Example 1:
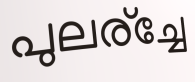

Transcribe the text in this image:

പുലര്ച്ചേ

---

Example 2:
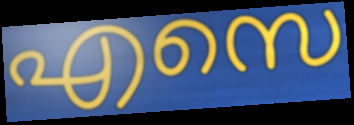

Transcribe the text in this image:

എസെ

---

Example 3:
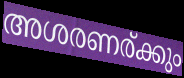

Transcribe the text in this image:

അശരണര്ക്കും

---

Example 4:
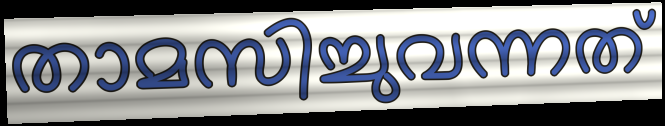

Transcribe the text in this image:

താമസിച്ചുവന്നത്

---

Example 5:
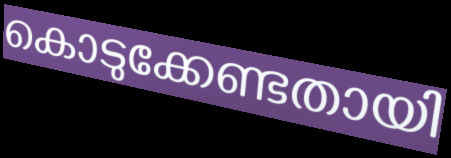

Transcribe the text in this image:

കൊടുക്കേണ്ടതായി